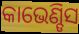
କାଭେଣ୍ଡିସ